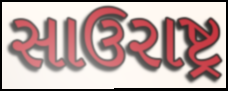
સાઉરાષ્ટ્ર